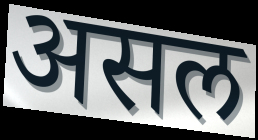
असल